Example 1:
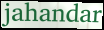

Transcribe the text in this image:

jahandar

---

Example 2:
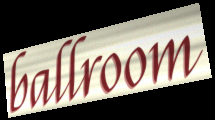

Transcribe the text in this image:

ballroom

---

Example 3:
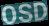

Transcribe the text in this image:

OSD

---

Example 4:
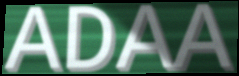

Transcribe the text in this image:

ADAA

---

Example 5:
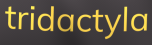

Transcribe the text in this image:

tridactyla